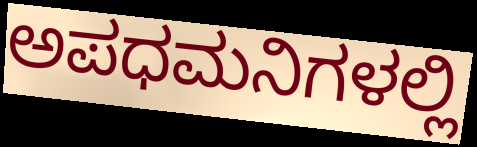
ಅಪಧಮನಿಗಳಲ್ಲಿ